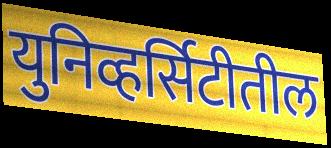
युनिव्हर्सिटीतील